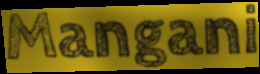
Mangani